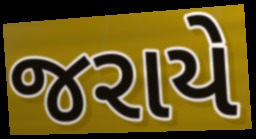
જરાયે